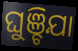
ଘୁଞ୍ଚିଯା